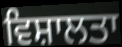
ਵਿਸ਼ਾਲਤਾ